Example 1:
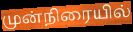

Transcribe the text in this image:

முன்நிரையில்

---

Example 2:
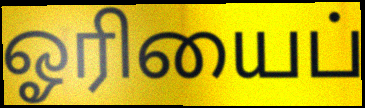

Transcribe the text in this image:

ஓரியைப்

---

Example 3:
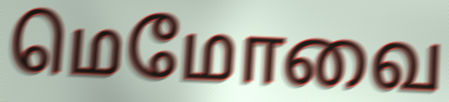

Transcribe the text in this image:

மெமோவை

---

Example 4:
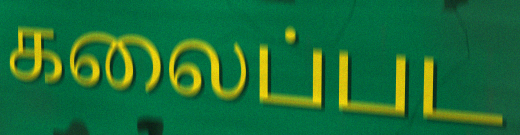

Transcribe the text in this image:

கலைப்பட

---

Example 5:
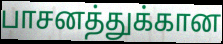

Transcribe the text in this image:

பாசனத்துக்கான